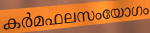
കർമഫലസംയോഗം